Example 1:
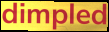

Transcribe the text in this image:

dimpled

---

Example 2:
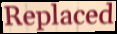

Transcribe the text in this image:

Replaced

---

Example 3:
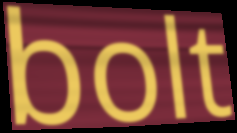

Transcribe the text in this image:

bolt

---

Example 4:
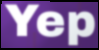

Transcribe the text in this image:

Yep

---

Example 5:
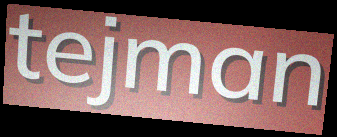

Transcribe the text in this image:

tejman